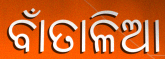
ବାଁତାଳିଆ